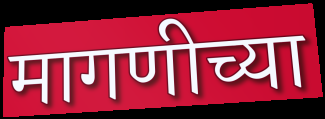
मागणीच्या